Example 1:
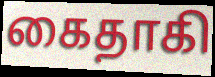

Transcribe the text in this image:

கைதாகி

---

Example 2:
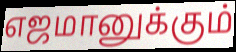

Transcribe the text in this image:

எஜமானுக்கும்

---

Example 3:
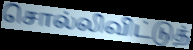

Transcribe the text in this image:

சொல்லிவிட்டுத்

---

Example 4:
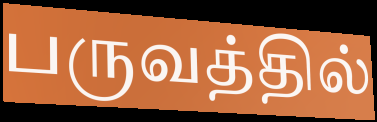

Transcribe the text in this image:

பருவத்தில்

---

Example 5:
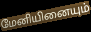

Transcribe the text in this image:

மேனியினையும்